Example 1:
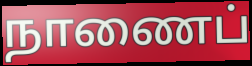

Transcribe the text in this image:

நாணைப்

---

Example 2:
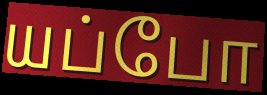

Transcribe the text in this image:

யப்போ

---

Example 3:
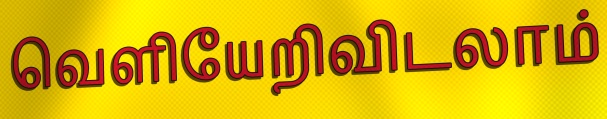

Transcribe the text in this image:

வெளியேறிவிடலாம்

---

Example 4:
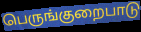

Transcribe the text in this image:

பெருங்குறைபாடு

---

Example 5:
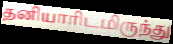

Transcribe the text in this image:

தனியாரிடமிருந்து